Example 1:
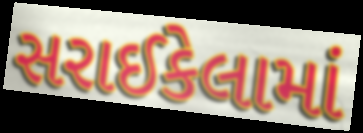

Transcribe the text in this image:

સરાઈકેલામાં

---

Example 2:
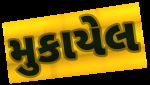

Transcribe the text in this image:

મુકાયેલ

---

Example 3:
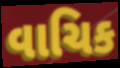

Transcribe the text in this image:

વાચિક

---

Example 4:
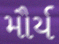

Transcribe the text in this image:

મૌર્ય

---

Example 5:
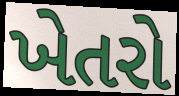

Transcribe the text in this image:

ખેતરો